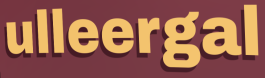
ulleergal